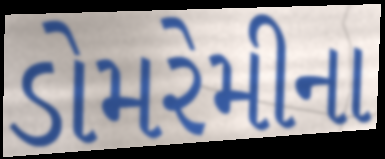
ડોમરેમીના